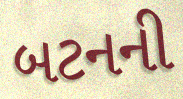
બટનની